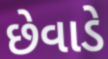
છેવાડે